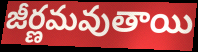
జీర్ణమవుతాయి